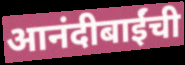
आनंदीबाईंची